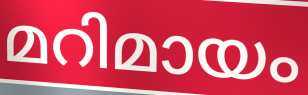
മറിമായം